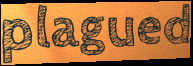
plagued